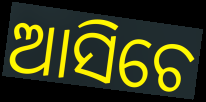
ଆସିଚେ